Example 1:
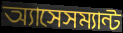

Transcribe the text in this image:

অ্যাসেসম্যান্ট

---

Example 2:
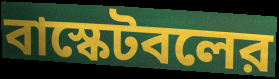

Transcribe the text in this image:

বাস্কেটবলের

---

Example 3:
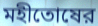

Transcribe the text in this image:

মহীতোষের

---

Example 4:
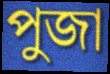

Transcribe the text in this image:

পুজা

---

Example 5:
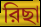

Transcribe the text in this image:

রিছা